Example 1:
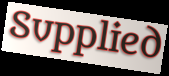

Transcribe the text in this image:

Supplied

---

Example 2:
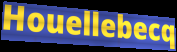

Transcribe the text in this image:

Houellebecq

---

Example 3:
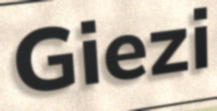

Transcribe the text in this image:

Giezi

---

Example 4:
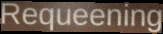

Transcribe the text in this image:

Requeening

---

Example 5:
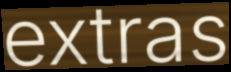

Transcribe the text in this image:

extras